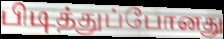
பிடித்துப்போனது